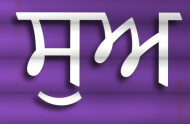
ਸੁਅ